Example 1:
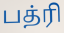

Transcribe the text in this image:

பத்ரி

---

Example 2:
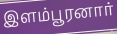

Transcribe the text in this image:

இளம்பூரனார்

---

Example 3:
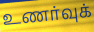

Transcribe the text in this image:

உணர்வுக்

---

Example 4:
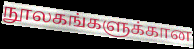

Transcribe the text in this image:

நூலகங்களுக்கான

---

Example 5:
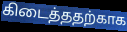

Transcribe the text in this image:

கிடைத்ததற்காக